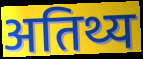
अतिथ्य